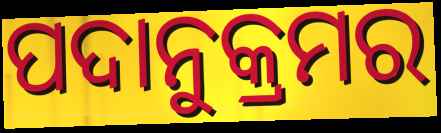
ପଦାନୁକ୍ରମର